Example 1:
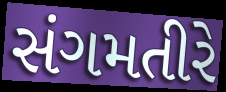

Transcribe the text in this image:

સંગમતીરે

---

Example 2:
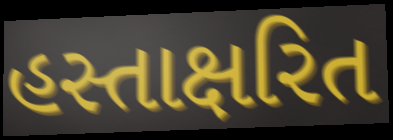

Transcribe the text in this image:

હસ્તાક્ષરિત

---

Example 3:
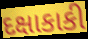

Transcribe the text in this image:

દક્ષાકાકી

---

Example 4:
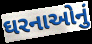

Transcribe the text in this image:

ઘરનાઓનું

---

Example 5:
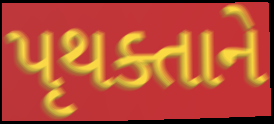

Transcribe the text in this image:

પૃથક્તાને